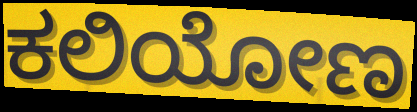
ಕಲಿಯೋಣ